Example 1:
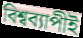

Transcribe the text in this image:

বিশ্বব্যাপীই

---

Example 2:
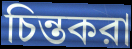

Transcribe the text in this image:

চিন্তকরা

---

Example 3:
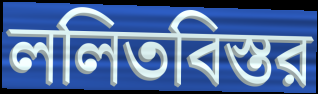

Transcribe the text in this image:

ললিতবিস্তর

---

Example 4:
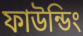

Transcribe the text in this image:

ফাউন্ডিং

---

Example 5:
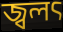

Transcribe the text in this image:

জ্বলৎ